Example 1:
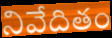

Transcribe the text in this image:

నివేదితం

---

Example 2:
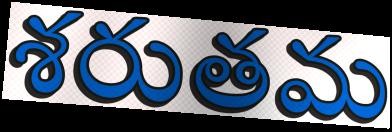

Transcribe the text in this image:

శరుతమ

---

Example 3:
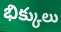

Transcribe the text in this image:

భిక్కులు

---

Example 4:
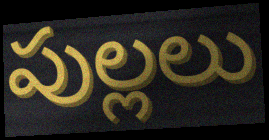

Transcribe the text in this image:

పుల్లలు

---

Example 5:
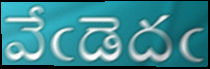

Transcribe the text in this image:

వేఁడెదఁ